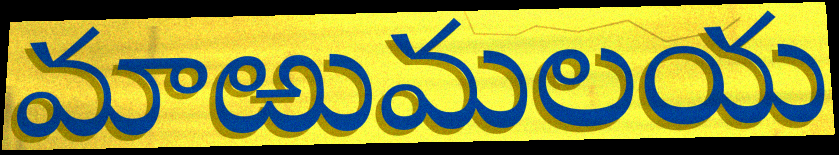
మాఱుమలయ